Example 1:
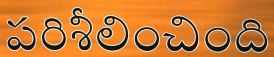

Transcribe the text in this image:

పరిశీలించింది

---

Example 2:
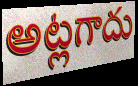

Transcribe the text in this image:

అట్లగాదు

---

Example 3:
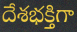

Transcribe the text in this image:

దేశభక్తిగా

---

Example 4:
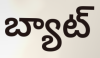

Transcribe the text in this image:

బ్యాట్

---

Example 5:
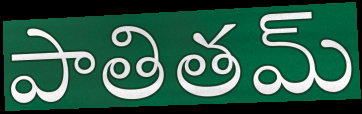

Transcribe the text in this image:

పాతితమ్